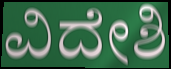
ವಿದೇಶಿ